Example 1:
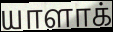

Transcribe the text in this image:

யாளாக்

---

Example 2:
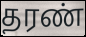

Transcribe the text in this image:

தரண்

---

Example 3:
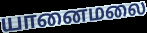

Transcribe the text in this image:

யானைமலை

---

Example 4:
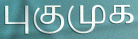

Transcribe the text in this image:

புகுமுக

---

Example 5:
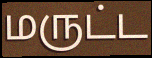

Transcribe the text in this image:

மருட்ட